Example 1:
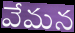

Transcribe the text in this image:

వేమన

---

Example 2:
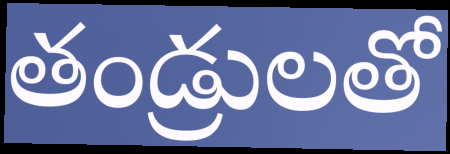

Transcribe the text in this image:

తండ్రులతో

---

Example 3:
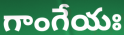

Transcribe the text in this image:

గాంగేయః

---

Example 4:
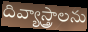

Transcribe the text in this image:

దివ్యాస్త్రాలను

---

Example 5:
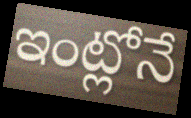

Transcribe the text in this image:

ఇంట్లోనే